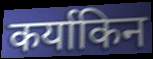
कर्याकिन